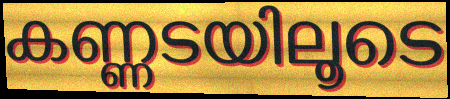
കണ്ണടയിലൂടെ